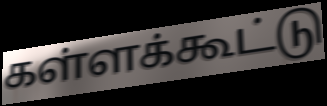
கள்ளக்கூட்டு